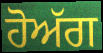
ਹੋਅੱਗ